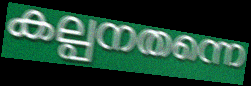
കല്പനതന്നെ